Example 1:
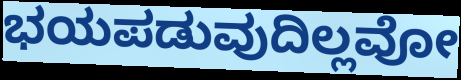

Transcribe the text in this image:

ಭಯಪಡುವುದಿಲ್ಲವೋ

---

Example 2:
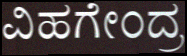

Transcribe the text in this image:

ವಿಹಗೇಂದ್ರ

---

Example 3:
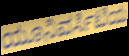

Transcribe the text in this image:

ಯೂನಿವರ್ಸಿಟಿಯ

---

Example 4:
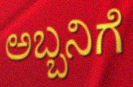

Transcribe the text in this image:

ಅಬ್ಬನಿಗೆ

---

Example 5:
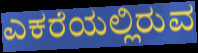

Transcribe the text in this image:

ಎಕರೆಯಲ್ಲಿರುವ